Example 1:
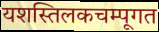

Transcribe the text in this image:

यशस्तिलकचम्पूगत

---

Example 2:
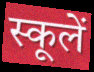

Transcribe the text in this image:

स्कूलें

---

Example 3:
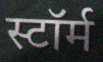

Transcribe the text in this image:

स्टॉर्म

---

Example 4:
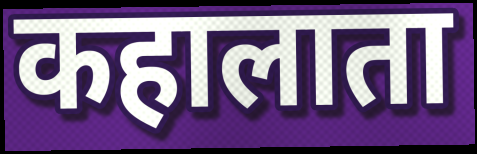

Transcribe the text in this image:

कहालाता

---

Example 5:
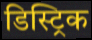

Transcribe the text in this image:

डिस्ट्रिक